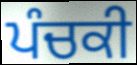
ਪੰਚਕੀ